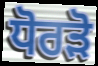
ਧੋਰੜੋ